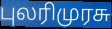
புலரிமுரசு